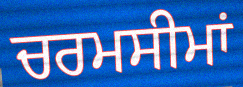
ਚਰਮਸੀਮਾਂ